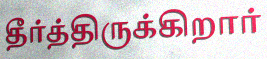
தீர்த்திருக்கிறார்